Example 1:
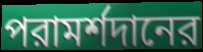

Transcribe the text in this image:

পরামর্শদানের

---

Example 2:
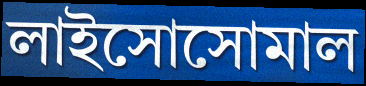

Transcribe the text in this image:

লাইসোসোমাল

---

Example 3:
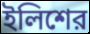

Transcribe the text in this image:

ইলিশের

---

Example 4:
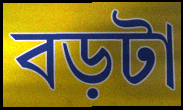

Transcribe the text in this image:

বড়টা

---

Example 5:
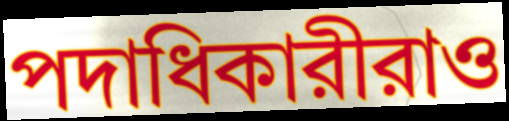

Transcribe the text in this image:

পদাধিকারীরাও